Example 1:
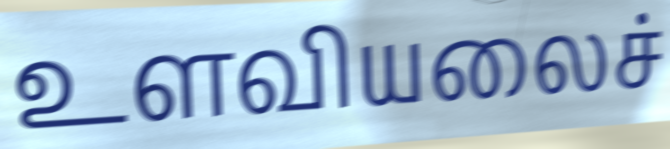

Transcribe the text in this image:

உளவியலைச்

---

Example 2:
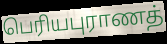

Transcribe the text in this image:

பெரியபுராணத்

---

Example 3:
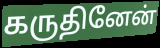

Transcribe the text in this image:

கருதினேன்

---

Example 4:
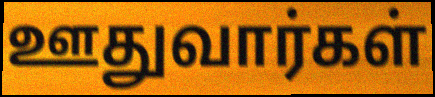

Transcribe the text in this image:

ஊதுவார்கள்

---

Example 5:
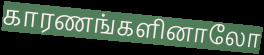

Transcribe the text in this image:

காரணங்களினாலோ